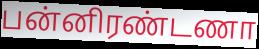
பன்னிரண்டணா